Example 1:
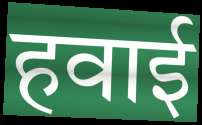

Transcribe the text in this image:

हवाई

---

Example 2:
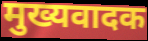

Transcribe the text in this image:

मुख्यवादक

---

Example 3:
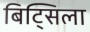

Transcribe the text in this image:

बिट्सिला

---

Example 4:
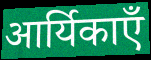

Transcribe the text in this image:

आर्यिकाएँ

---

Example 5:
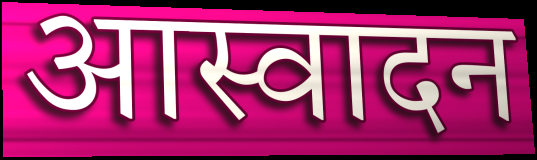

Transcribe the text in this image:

आस्वादन